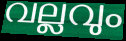
വല്ലവും